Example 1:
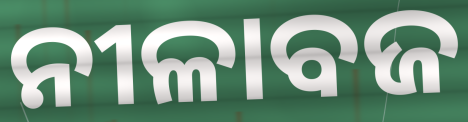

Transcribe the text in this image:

ନୀଳାବଜ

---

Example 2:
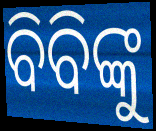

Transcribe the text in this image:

ବିବିଙ୍କୁ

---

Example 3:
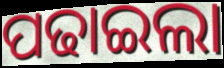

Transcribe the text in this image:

ପଢାଇଲା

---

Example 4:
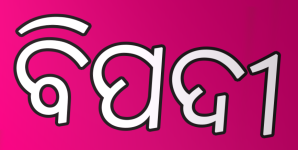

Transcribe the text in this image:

ବିପଦୀ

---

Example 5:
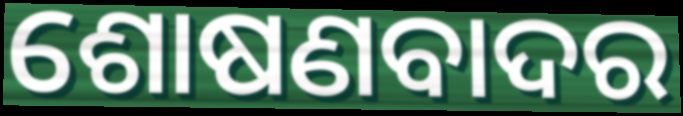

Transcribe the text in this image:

ଶୋଷଣବାଦର